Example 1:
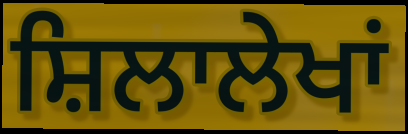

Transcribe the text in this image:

ਸ਼ਿਲਾਲੇਖਾਂ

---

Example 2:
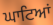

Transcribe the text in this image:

ਘਾਟਿਆਂ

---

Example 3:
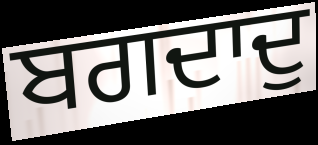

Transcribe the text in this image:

ਬਗਦਾਦੁ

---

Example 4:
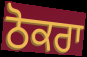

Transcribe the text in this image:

ਠੋਕਰਾ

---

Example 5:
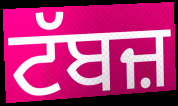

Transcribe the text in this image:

ਟੱਬਜ਼